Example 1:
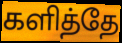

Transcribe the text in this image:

களித்தே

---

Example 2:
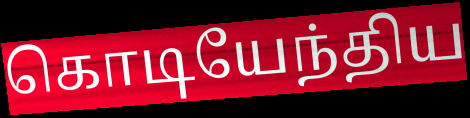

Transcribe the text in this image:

கொடியேந்திய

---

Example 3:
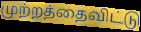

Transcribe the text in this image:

முற்றத்தைவிட்டு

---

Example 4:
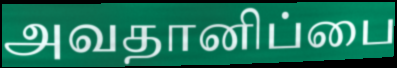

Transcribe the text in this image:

அவதானிப்பை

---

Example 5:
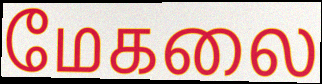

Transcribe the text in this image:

மேகலை